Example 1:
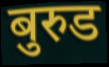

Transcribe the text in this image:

बुरुड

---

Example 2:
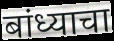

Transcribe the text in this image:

बांध्याचा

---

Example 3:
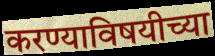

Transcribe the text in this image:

करण्याविषयीच्या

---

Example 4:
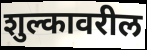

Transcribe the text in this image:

शुल्कावरील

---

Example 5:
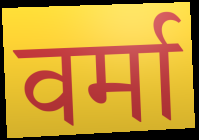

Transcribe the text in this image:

वर्मा